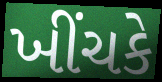
ખીંચકે